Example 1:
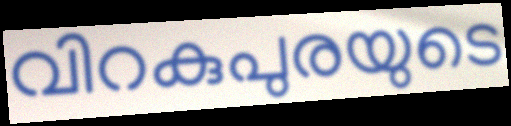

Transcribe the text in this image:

വിറകുപുരയുടെ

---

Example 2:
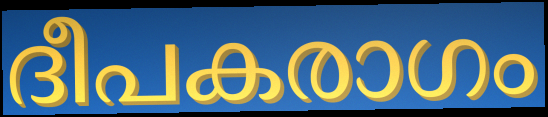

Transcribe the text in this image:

ദീപകരാഗം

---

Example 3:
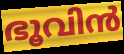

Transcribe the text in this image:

ഭൂവിൻ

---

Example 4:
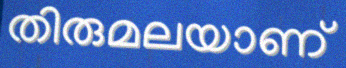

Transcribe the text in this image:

തിരുമലയാണ്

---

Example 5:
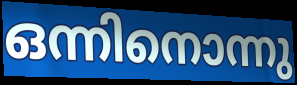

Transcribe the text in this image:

ഒന്നിനൊന്നു